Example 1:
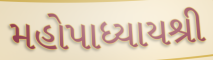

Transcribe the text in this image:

મહોપાધ્યાયશ્રી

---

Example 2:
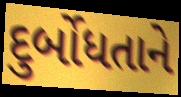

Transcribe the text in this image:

દુર્બોધતાને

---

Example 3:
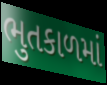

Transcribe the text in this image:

ભુતકાળમાં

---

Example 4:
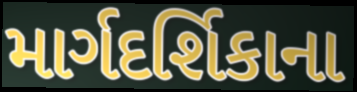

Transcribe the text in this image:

માર્ગદર્શિકાના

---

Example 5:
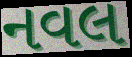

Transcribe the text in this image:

નવલ